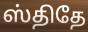
ஸ்திதே